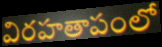
విరహతాపంలో